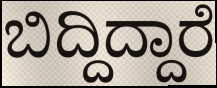
ಬಿದ್ದಿದ್ದಾರೆ